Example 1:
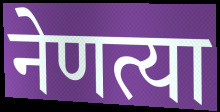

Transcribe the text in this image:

नेणत्या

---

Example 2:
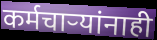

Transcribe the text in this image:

कर्मचाऱ्यांनाही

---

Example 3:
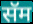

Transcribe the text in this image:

सॅम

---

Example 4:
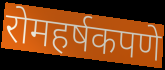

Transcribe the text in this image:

रोमहर्षकपणे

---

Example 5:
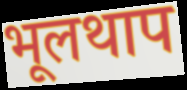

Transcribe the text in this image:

भूलथाप